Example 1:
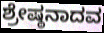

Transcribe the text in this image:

ಶ್ರೇಷ್ಠನಾದವ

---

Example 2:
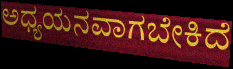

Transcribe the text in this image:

ಅಧ್ಯಯನವಾಗಬೇಕಿದೆ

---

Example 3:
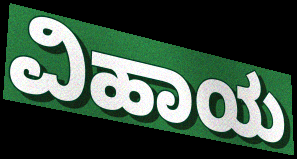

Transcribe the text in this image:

ವಿಹಾಯ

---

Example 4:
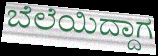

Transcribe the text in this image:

ಬೆಲೆಯಿದ್ದಾಗ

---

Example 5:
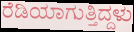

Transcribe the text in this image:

ರೆಡಿಯಾಗುತ್ತಿದ್ದಳು